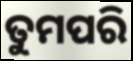
ତୁମପରି